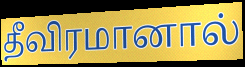
தீவிரமானால்